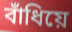
বাঁধিয়ে